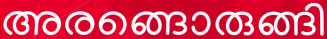
അരങ്ങൊരുങ്ങി